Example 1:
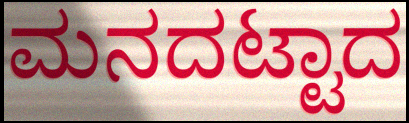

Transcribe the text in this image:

ಮನದಟ್ಟಾದ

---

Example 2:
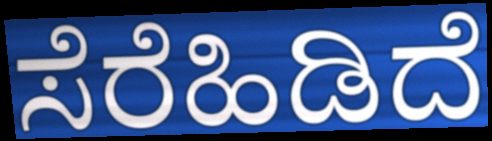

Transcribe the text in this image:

ಸೆರೆಹಿಡಿದೆ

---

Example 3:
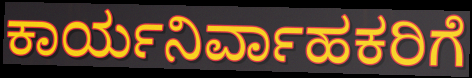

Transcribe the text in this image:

ಕಾರ್ಯನಿರ್ವಾಹಕರಿಗೆ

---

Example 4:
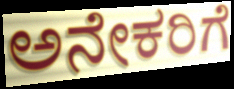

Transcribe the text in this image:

ಅನೇಕರಿಗೆ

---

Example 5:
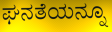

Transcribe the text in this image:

ಘನತೆಯನ್ನೂ